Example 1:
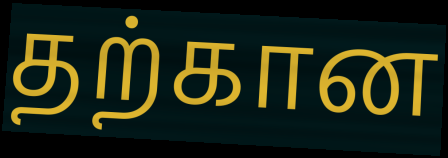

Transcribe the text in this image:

தற்கான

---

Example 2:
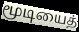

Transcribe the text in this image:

மூடியைத்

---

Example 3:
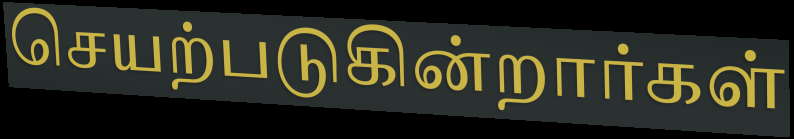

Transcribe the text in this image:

செயற்படுகின்றார்கள்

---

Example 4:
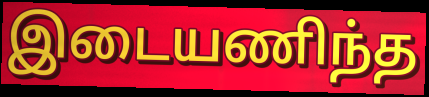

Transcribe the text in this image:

இடையணிந்த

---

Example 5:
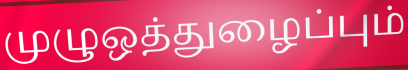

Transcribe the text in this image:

முழுஒத்துழைப்பும்